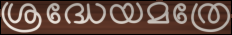
ശ്രദ്ധേയമത്രേ